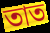
তাত